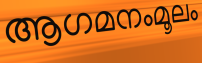
ആഗമനംമൂലം